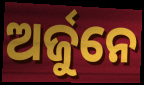
ଅର୍ଜୁନେ